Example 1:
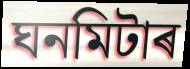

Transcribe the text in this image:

ঘনমিটাৰ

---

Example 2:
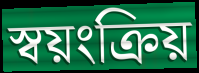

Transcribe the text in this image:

স্বয়ংক্ৰিয়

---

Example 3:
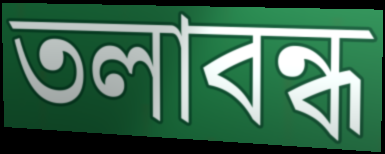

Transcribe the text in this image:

তলাবন্ধ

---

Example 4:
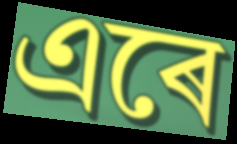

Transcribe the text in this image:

এৰে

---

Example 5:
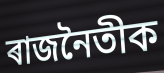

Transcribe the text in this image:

ৰাজনৈতীক